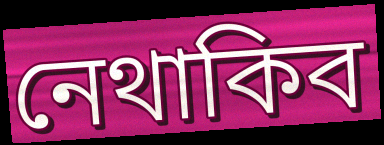
নেথাকিব